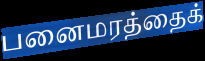
பனைமரத்தைக்